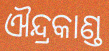
ଐନ୍ଦ୍ରକାଣ୍ଡ